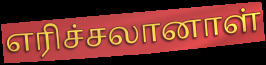
எரிச்சலானாள்